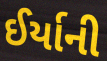
ઈર્યાની